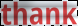
thank